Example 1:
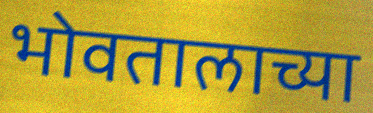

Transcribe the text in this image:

भोवतालाच्या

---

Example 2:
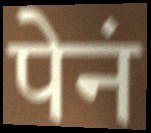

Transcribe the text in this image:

पेनं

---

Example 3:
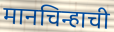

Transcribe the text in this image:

मानचिन्हाची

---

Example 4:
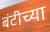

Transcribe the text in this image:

बंटीच्या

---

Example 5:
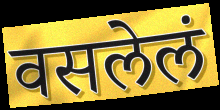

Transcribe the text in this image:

वसलेलं